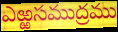
ఎఱ్ఱసముద్రము